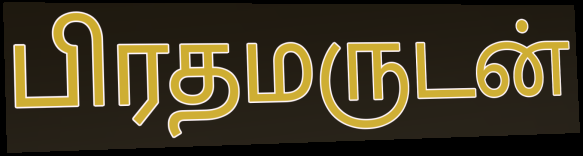
பிரதமருடன்